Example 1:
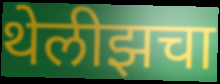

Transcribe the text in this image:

थेलीझचा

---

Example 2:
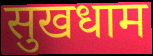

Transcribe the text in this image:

सुखधाम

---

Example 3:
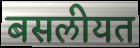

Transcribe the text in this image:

बसलीयत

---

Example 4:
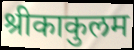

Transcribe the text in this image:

श्रीकाकुलम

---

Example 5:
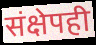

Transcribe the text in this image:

संक्षेपही